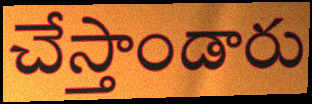
చేస్తాండారు